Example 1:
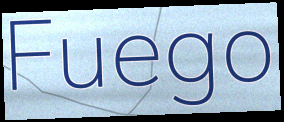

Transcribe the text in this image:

Fuego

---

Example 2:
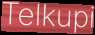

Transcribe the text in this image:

Telkupi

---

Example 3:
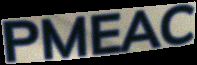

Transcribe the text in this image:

PMEAC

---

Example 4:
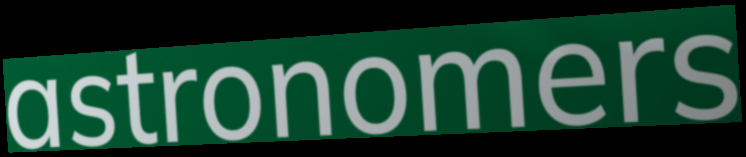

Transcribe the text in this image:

astronomers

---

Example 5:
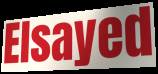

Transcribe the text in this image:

Elsayed